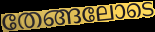
തേങ്ങലോടെ